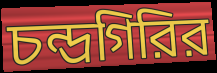
চন্দ্রগিরির